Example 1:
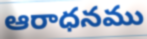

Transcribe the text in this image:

ఆరాధనము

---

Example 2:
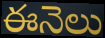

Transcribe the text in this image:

ఈనెలు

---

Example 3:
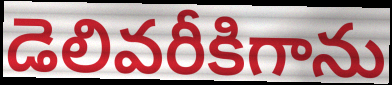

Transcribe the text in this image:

డెలివరీకిగాను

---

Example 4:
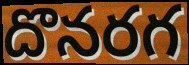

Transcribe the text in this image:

దొనరగ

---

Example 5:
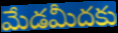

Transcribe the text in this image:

మేడమీదకు